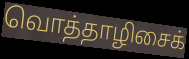
வொத்தாழிசைக்